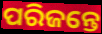
ପରିଜନ୍ତେ